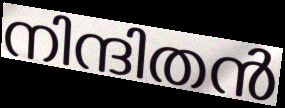
നിന്ദിതൻ